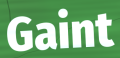
Gaint